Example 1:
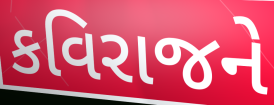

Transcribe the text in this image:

કવિરાજને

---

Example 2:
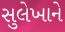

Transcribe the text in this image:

સુલેખાને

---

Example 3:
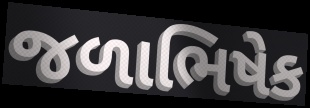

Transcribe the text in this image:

જળાભિષેક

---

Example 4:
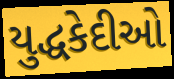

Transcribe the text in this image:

યુદ્ધકેદીઓ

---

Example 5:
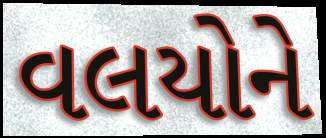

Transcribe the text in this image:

વલયોને